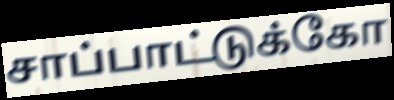
சாப்பாட்டுக்கோ